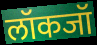
लॉकजॉ